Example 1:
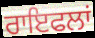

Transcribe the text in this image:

ਰਾਇਫਲਾਂ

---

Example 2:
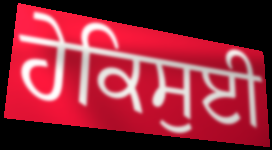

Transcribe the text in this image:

ਹੇਕਿਸੁਈ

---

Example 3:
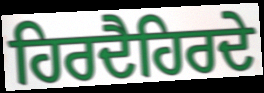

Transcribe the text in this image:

ਹਿਰਦੈਹਿਰਦੇ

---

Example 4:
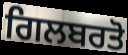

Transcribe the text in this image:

ਗਿਲਬਰਤੋ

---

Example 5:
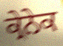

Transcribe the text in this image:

ਕ੍ਰੇਨੇਕ